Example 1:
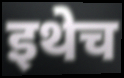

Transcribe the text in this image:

इथेच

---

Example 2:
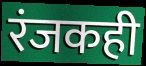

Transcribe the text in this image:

रंजकही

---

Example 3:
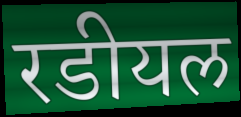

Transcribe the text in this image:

रडीयल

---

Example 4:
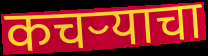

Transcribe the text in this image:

कचऱ्याचा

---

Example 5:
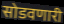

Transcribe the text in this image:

सोडवणारी